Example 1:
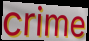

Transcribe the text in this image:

crime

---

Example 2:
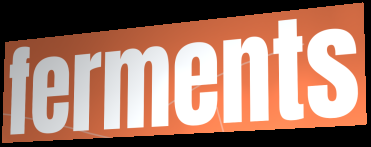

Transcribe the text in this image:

ferments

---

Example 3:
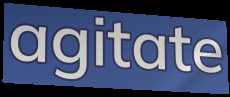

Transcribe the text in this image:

agitate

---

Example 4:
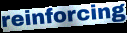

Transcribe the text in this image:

reinforcing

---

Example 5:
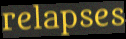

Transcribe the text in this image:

relapses